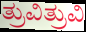
ತ್ರುವಿತ್ರುವಿ